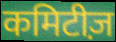
कमिटीज़